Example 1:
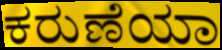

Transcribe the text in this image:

ಕರುಣೆಯಾ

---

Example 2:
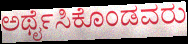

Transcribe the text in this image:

ಅರ್ಥೈಸಿಕೊಂಡವರು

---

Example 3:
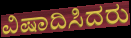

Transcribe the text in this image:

ವಿಷಾದಿಸಿದರು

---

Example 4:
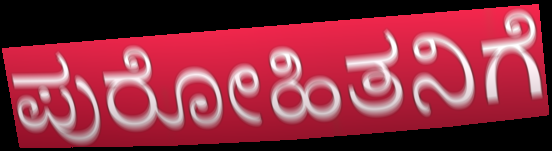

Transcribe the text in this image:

ಪುರೋಹಿತನಿಗೆ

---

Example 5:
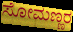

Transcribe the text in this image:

ಸೋಮಣ್ಣರ